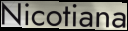
Nicotiana